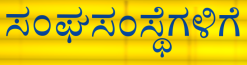
ಸಂಘಸಂಸ್ಥೆಗಳಿಗೆ